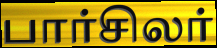
பார்சிலர்